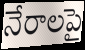
నేరాలపై